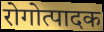
रोगोत्पादक